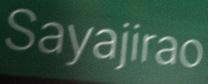
Sayajirao